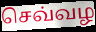
செவ்வழ